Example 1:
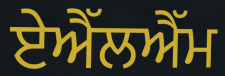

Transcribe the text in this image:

ਏਐੱਲਐੱਮ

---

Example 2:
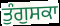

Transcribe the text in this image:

ਤੁੰਗੁਸਕਾ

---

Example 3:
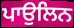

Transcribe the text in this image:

ਪਾਉਲਿਨ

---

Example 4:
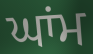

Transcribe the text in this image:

ਘਾਂਮ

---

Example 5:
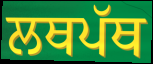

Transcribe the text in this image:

ਲਥਪੱਥ